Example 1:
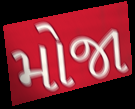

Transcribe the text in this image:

મોજા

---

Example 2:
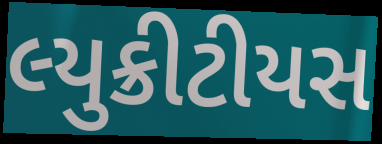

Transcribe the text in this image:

લ્યુક્રીટીયસ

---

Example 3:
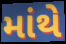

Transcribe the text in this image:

માંથે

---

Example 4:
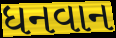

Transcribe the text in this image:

ધનવાન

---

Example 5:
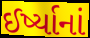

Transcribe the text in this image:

ઈર્ષ્યાનાં